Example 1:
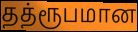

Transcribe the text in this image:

தத்ரூபமான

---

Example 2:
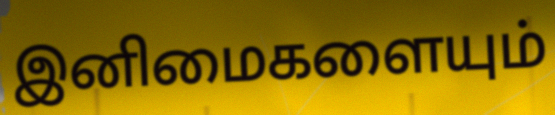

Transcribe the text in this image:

இனிமைகளையும்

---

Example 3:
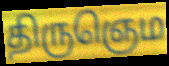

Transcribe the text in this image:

திருஞெம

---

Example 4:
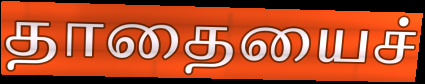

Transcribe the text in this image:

தாதையைச்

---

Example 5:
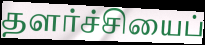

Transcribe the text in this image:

தளர்ச்சியைப்